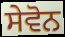
ਸੇਵੋਨ